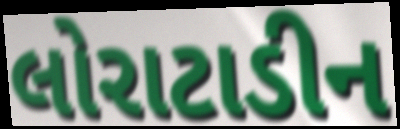
લોરાટાડીન